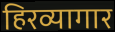
हिरव्यागार